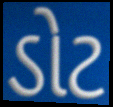
ડોટ